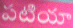
పటియా